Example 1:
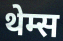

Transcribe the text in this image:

थेम्स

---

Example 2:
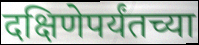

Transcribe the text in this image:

दक्षिणेपर्यंतच्या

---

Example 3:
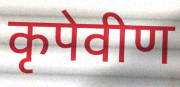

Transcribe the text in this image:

कृपेवीण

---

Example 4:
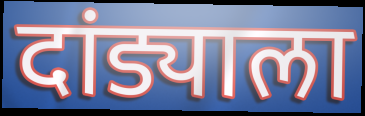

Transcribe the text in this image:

दांड्याला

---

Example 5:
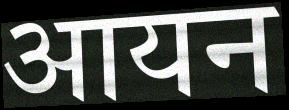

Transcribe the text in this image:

आयन